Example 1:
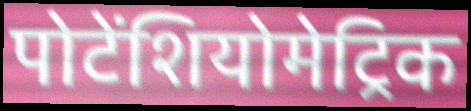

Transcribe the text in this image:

पोटेंशियोमेट्रिक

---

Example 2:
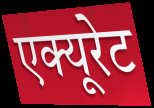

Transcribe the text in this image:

एक्यूरेट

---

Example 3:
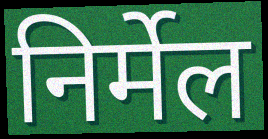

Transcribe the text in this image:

निर्मेल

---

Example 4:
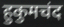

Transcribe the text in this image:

हुकुमचंद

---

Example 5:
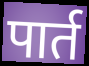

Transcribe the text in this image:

पार्त